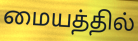
மையத்தில்